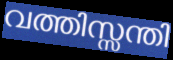
വത്തിസ്സന്തി